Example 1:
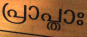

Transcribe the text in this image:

പ്രാപ്താഃ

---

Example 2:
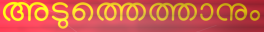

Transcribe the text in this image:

അടുത്തെത്താനും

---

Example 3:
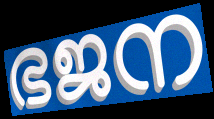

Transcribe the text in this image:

ഭജന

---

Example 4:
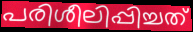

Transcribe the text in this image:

പരിശീലിപ്പിച്ചത്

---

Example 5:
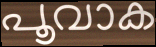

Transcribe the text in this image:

പൂവാക